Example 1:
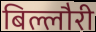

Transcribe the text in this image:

बिल्लौरी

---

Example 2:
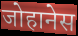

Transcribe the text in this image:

जोहानेस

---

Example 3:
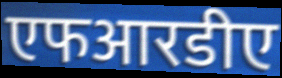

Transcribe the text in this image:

एफआरडीए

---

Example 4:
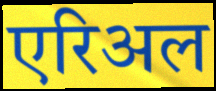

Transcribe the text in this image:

एरिअल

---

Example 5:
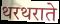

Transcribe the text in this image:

थरथराते